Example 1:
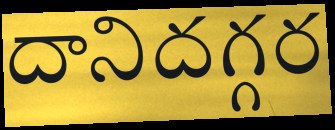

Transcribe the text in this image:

దానిదగ్గర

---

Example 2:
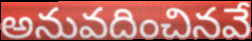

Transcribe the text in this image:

అనువదించినవే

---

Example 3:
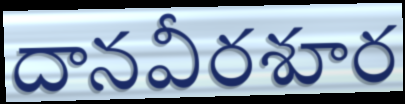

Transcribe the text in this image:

దానవీరశూర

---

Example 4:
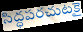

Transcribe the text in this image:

సిద్ధపరచుటకై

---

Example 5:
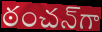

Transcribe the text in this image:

ఠంచన్‌గా